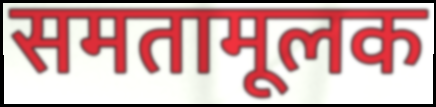
समतामूलक